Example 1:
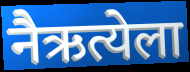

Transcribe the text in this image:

नैऋत्येला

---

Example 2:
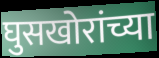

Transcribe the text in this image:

घुसखोरांच्या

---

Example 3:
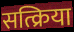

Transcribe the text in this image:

सत्क्रिया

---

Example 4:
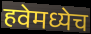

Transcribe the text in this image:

हवेमध्येच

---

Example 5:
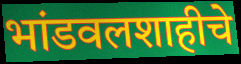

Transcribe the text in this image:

भांडवलशाहीचे